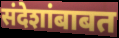
संदेशांबाबत